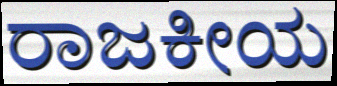
ರಾಜಕೀಯ